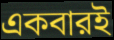
একবারই